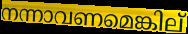
നന്നാവണമെങ്കില്